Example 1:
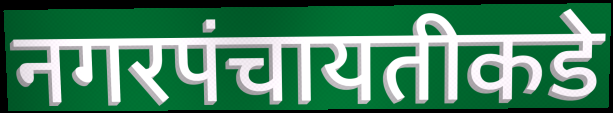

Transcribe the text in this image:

नगरपंचायतीकडे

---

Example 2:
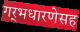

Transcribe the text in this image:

गर्भधारणेसह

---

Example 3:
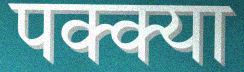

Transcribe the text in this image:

पक्क्या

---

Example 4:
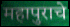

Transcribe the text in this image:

महापुराचे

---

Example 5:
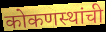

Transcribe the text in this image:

कोकणस्थांची